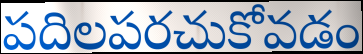
పదిలపరచుకోవడం